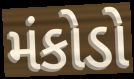
મંકોડો